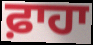
ਫ਼ਾਹਾ